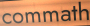
commath